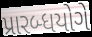
પ્રારબ્ધયોગે